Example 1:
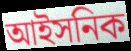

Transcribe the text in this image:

আইসনিক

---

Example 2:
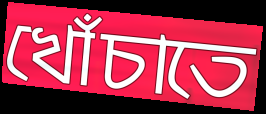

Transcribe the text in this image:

খোঁচাতে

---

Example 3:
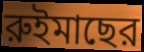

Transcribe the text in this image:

রুইমাছের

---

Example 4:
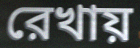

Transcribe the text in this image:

রেখায়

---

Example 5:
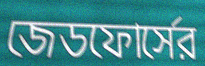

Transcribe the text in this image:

জেডফোর্সের